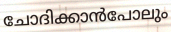
ചോദിക്കാൻപോലും